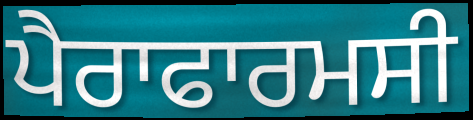
ਪੈਰਾਫਾਰਮਸੀ